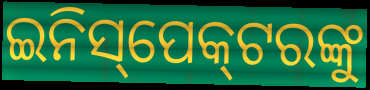
ଇନିସ୍‌ପେକ୍‍ଟରଙ୍କୁ